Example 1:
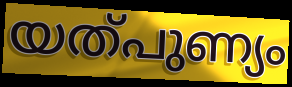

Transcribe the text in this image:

യത്പുണ്യം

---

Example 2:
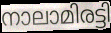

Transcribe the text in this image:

നാലാമിരട്ടി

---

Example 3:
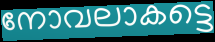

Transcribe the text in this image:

നോവലാകട്ടെ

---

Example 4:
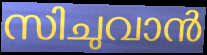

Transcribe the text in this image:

സിചുവാൻ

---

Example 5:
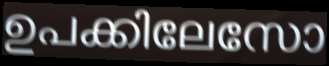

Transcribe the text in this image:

ഉപക്കിലേസോ